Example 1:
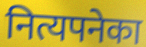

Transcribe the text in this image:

नित्यपनेका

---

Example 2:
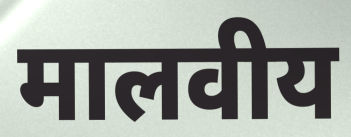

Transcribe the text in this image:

मालवीय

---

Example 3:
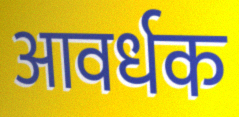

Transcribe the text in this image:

आवर्धक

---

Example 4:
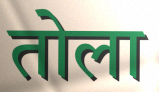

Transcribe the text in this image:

तोला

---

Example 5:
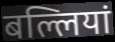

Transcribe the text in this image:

बल्लियां